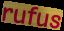
rufus